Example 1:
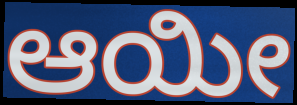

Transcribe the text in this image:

ಆಯೀ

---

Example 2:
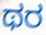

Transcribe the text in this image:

ಥರ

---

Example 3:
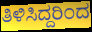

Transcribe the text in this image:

ತಿಳಿಸಿದ್ದರಿಂದ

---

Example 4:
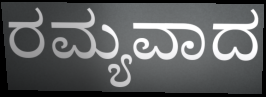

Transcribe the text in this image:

ರಮ್ಯವಾದ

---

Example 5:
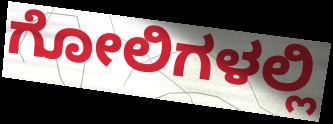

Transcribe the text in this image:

ಗೋಲಿಗಳಲ್ಲಿ